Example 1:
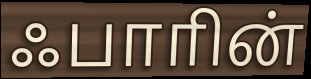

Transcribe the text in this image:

ஃபாரின்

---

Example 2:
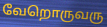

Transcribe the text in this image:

வேறொருவரு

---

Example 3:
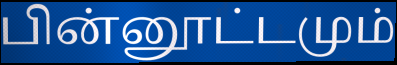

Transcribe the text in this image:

பின்னூட்டமும்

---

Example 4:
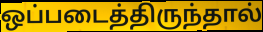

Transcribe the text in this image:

ஒப்படைத்திருந்தால்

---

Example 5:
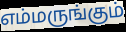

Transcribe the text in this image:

எம்மருங்கும்